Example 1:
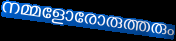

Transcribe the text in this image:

നമ്മളോരോരുത്തരും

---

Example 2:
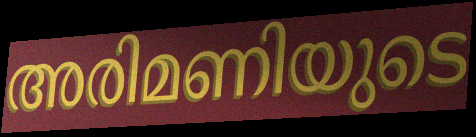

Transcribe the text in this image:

അരിമണിയുടെ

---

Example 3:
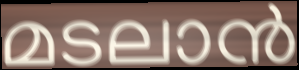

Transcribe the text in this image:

മടലാൻ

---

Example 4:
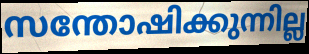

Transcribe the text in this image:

സന്തോഷിക്കുന്നില്ല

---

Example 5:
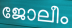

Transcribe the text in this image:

ജോലീം